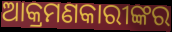
ଆକ୍ରମଣକାରୀଙ୍କର